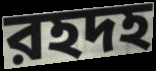
রহদহ